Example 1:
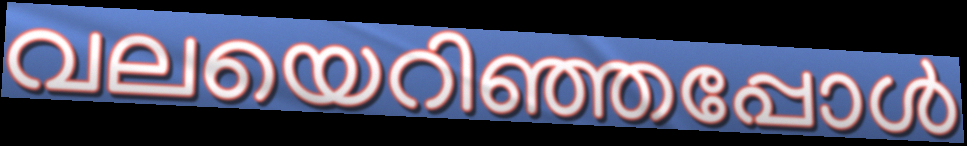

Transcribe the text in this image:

വലയെറിഞ്ഞപ്പോൾ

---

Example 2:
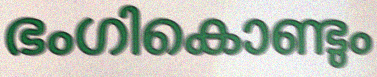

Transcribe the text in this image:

ഭംഗികൊണ്ടും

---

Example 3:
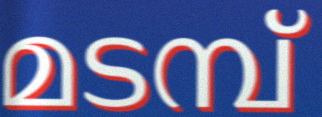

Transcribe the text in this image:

മടമ്പ്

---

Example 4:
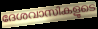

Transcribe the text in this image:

ദേശവാസികളുടെ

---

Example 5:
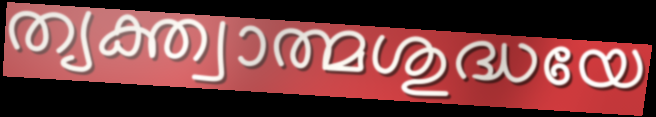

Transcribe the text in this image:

ത്യക്ത്വാത്മശുദ്ധയേ